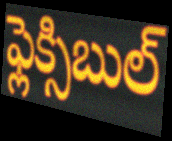
ఫ్లెక్సిబుల్